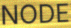
NODE